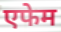
एफेम